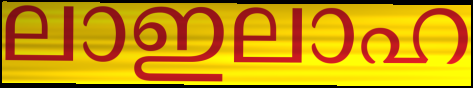
ലാഇലാഹ